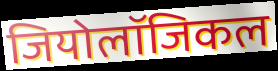
जियोलॉजिकल